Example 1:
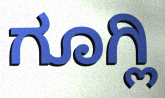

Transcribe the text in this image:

ಗೂಗ್ಲಿ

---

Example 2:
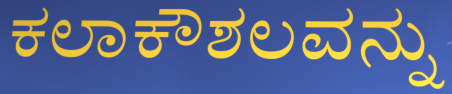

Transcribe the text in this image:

ಕಲಾಕೌಶಲವನ್ನು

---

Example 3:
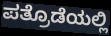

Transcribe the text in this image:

ಪತ್ರೊಡೆಯಲ್ಲಿ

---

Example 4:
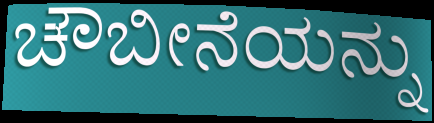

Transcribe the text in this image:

ಚೌಬೀನೆಯನ್ನು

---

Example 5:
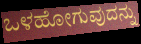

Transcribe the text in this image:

ಒಳಹೋಗುವುದನ್ನು